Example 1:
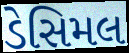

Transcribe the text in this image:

ડેસિમલ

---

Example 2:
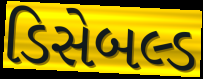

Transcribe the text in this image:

ડિસેબલ્ડ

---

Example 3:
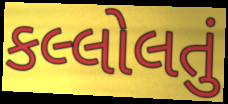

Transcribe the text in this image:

કલ્લોલતું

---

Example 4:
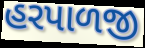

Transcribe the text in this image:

હરપાળજી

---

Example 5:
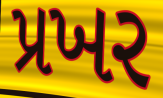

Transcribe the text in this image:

પ્રખર